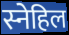
स्नेहिल